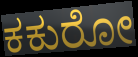
ಕಕುರೋ